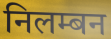
निलम्‍बन